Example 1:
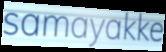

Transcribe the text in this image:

samayakke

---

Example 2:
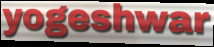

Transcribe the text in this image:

yogeshwar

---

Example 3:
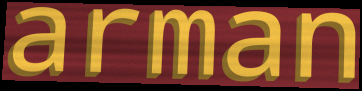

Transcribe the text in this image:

arman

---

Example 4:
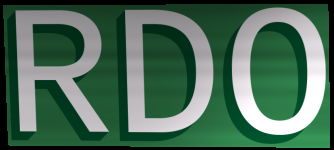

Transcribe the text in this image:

RDO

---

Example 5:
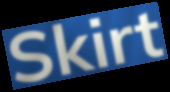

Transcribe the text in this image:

Skirt